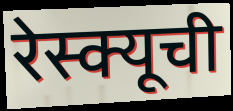
रेस्क्यूची